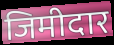
जिमीदार